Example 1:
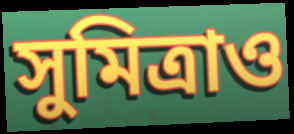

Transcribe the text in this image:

সুমিত্রাও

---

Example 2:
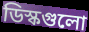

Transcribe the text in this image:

ডিস্কগুলো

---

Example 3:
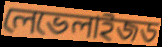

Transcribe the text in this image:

লেভেলাইজড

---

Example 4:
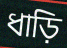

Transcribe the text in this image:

ধাড়ি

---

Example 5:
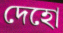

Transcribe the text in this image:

দেহো